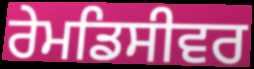
ਰੇਮਡਿਸੀਵਰ